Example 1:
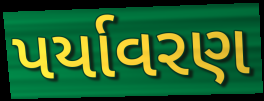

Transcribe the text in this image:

પર્યાવરણ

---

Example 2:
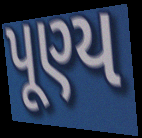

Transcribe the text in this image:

પૂણ્ય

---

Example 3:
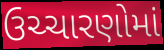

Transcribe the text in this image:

ઉચ્ચારણોમાં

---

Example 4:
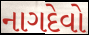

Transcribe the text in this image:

નાગદેવો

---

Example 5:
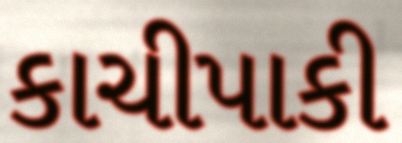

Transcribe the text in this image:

કાચીપાકી